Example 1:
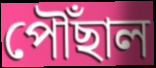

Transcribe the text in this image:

পৌঁছাল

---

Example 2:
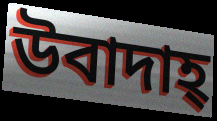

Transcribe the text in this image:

উবাদাহ্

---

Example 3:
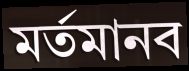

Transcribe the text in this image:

মর্তমানব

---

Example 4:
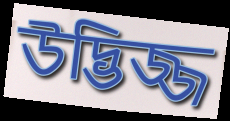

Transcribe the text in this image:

উদ্ভিজ্জ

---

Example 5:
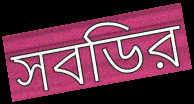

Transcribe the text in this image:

সবডির